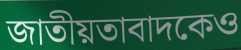
জাতীয়তাবাদকেও